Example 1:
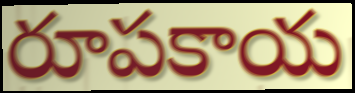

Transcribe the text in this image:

రూపకాయ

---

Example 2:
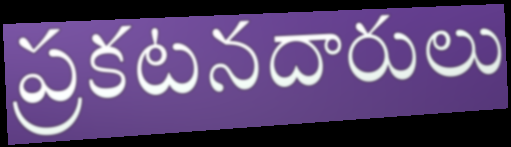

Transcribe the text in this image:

ప్రకటనదారులు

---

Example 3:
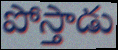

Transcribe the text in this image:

పోస్తాడు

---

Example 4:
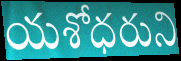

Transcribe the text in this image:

యశోధరుని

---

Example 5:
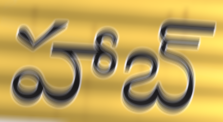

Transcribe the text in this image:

హాబ్